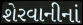
શેરવાનીનાં